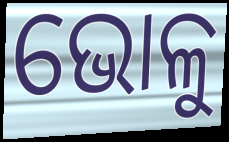
ଭୋଳୁ